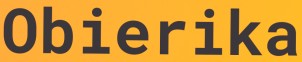
Obierika